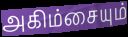
அகிம்சையும்